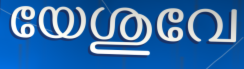
യേശുവേ